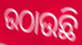
ଉଠାଉଛି